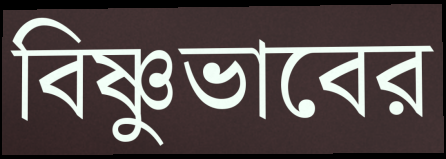
বিষ্ণুভাবের